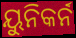
ୟୁନିକର୍ନ